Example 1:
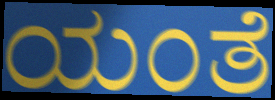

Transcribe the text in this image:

ಯಂತೆ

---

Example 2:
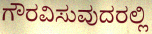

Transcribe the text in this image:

ಗೌರವಿಸುವುದರಲ್ಲಿ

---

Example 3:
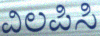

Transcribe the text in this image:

ವಿಲಪಿಸಿ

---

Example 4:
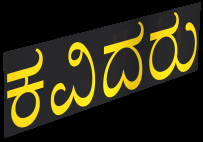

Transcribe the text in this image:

ಕವಿದರು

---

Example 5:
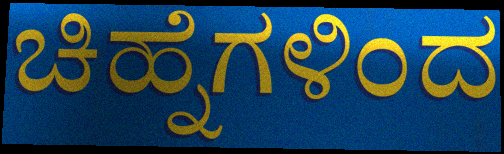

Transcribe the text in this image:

ಚಿಹ್ನೆಗಳಿಂದ